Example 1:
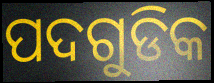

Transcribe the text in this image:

ପଦଗୁଡିକ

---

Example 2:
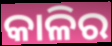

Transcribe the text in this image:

କାଳିର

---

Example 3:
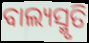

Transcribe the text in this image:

ବାଲ୍ୟସ୍ମୃତି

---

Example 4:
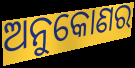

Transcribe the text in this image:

ଅନୁକୋଣର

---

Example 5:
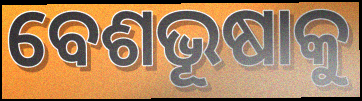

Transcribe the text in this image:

ବେଶଭୂଷାକୁ